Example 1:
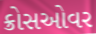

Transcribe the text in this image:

ક્રોસઓવર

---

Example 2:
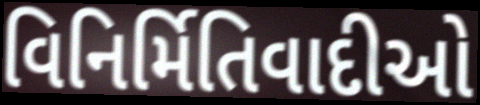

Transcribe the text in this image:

વિનિર્મિતિવાદીઓ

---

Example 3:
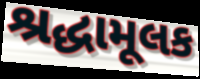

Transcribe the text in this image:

શ્રદ્ધામૂલક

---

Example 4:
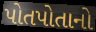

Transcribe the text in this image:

પોતપોતાનો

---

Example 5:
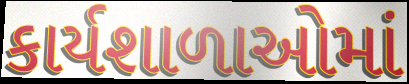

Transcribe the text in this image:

કાર્યશાળાઓમાં